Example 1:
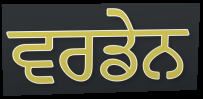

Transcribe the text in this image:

ਵਰਡੇਨ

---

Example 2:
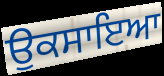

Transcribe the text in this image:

ਉਕਸਾਇਆ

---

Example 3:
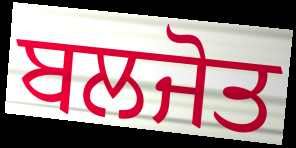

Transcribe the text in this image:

ਬਲਜੋਤ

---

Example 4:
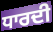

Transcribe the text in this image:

ਧਾਰਦੀ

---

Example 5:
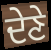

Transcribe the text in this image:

ਦੇਣੇ